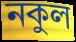
নকুল